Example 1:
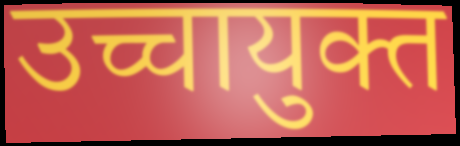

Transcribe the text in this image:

उच्‍चायुक्‍त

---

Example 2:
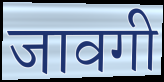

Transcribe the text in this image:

जावगी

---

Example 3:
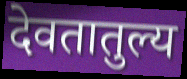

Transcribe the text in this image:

देवतातुल्य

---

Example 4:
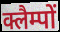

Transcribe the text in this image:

क्लैम्पों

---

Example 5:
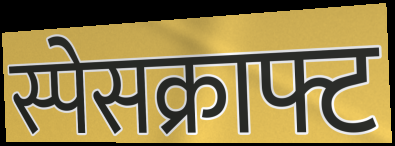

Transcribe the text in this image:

स्‍पेसक्राफ्ट